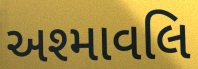
અશ્માવલિ